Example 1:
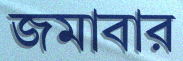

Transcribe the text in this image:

জমাবার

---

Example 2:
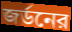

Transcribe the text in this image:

জর্ডনের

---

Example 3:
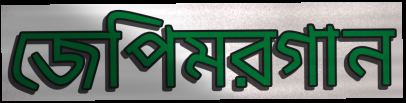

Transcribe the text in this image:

জেপিমরগান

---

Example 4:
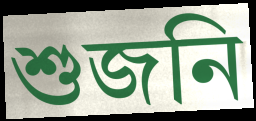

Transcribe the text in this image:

শুজনি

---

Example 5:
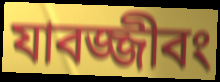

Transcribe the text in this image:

যাবজ্জীবং